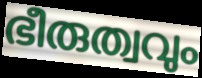
ഭീരുത്വവും